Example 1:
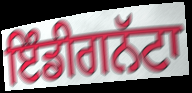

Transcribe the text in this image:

ਇੰਡੀਗਨੱਟਾ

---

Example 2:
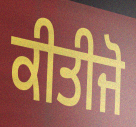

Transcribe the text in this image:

ਕੀਤੀਜੋ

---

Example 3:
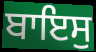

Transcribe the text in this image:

ਬਾਇਸੁ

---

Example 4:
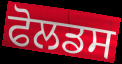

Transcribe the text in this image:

ਫੋਲਡਸ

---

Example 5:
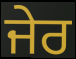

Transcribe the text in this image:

ਜੇਰ